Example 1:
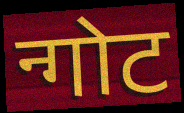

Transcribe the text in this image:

न्गोट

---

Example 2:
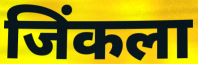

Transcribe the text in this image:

जिंकला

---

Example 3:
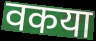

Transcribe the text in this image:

वकया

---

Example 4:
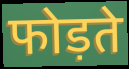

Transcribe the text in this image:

फोड़ते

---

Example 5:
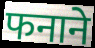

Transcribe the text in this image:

फनाने